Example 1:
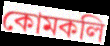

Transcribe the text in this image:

কোমকলি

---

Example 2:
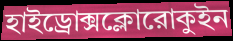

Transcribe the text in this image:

হাইড্রোক্সক্লোরোকুইন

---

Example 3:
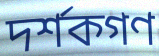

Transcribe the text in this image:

দর্শকগণ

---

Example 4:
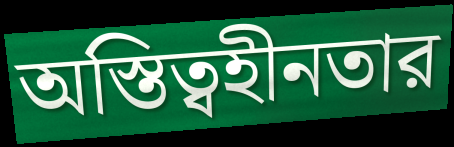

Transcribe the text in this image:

অস্তিত্বহীনতার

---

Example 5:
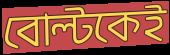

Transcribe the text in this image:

বোল্টকেই